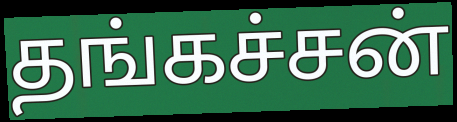
தங்கச்சன்